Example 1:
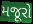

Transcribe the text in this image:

મજૂરો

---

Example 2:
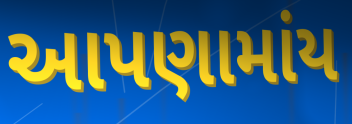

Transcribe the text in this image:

આપણામાંય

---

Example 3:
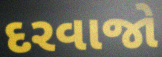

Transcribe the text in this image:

દરવાજો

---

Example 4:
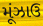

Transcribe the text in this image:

મૂંઝાઉ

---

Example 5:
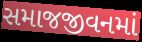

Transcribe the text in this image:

સમાજજીવનમાં